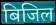
बिजिल